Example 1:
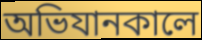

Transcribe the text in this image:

অভিযানকালে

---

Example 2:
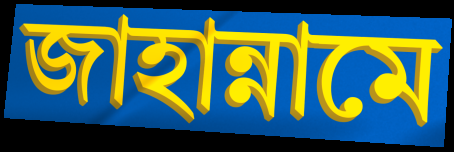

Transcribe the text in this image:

জাহান্নামে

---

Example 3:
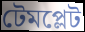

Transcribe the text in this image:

টেমপ্লেট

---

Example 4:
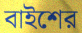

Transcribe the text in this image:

বাইশের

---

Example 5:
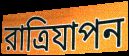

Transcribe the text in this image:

রাত্রিযাপন